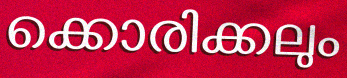
ക്കൊരിക്കലും